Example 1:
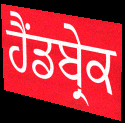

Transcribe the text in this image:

ਹੈਂਡਬ੍ਰੇਕ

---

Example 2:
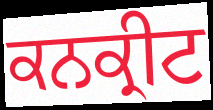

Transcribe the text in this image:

ਕਨਕ੍ਰੀਟ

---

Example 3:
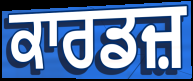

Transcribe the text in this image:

ਕਾਰਡਜ਼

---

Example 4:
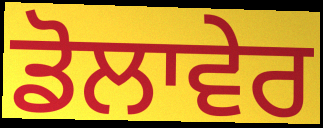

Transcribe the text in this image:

ਡੋਲਾਵੇਰ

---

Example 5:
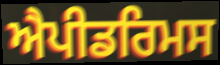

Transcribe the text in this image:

ਐਪੀਡਰਿਮਸ